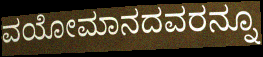
ವಯೋಮಾನದವರನ್ನೂ